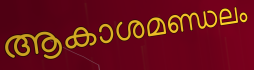
ആകാശമണ്ഡലം